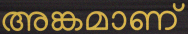
അങ്കമാണ്